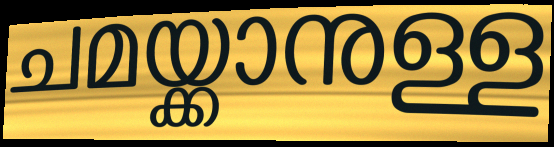
ചമയ്ക്കാനുള്ള